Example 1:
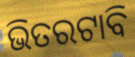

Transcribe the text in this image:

ଭିତରଟାବି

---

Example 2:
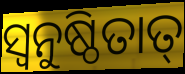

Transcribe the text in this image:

ସ୍ଵନୁଷ୍ଠିତାତ୍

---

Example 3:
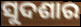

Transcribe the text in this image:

ସୁଦଶାର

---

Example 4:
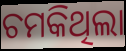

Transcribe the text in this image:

ଚମକିଥିଲା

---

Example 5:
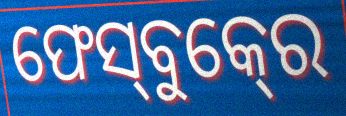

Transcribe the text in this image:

ଫେସ୍‍ବୁକ୍‍ରେ